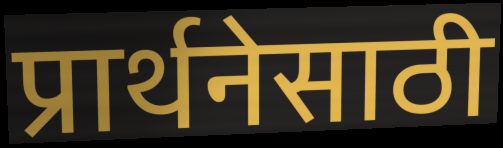
प्रार्थनेसाठी